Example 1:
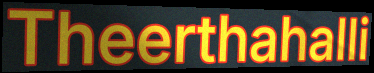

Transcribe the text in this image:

Theerthahalli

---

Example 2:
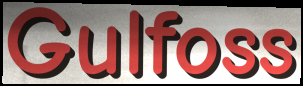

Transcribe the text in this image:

Gulfoss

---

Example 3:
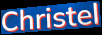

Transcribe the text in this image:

Christel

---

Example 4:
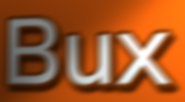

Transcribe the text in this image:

Bux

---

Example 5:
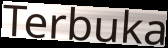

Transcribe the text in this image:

Terbuka